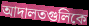
আদালতগুলিকে